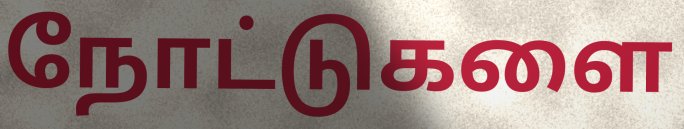
நோட்டுகளை